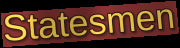
Statesmen